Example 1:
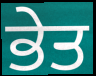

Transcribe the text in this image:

ਭੇਤ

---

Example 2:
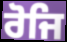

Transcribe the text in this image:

ਰੋਜਿ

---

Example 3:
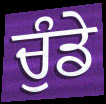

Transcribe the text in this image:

ਚੁੰਡੇ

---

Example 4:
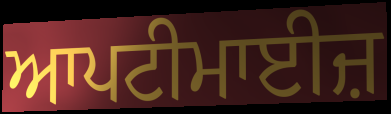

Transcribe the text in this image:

ਆਪਟੀਮਾਈਜ਼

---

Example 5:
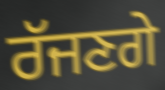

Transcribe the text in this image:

ਰੱਜਣਗੇ